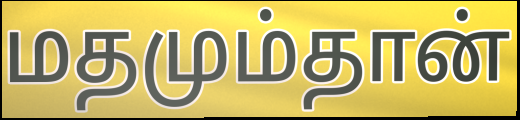
மதமும்தான்